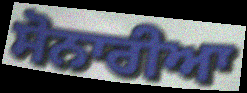
ਸੋਨਾਰੀਆ